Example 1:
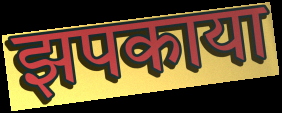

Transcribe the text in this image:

झपकाया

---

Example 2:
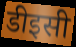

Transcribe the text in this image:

डीइसी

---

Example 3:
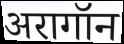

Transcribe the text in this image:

अरागॉन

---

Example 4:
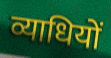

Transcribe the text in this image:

व्याधियों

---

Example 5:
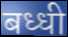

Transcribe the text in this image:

बध्धी